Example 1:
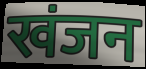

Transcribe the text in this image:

खंजन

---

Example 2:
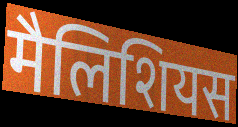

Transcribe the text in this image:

मैलिशियस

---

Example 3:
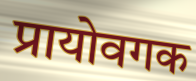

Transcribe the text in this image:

प्रायोवगक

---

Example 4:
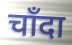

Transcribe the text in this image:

चाँदा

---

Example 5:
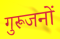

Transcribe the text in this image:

गुरूजनों